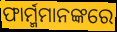
ଫାର୍ମ୍ମମାନଙ୍କରେ